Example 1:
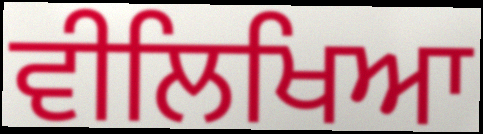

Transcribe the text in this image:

ਵੀਲਿਖਿਆ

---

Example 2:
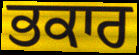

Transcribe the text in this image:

ਭਕਾਰ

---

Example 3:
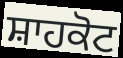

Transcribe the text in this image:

ਸ਼ਾਹਕੋਟ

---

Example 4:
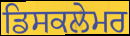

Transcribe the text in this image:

ਡਿਸਕਲੇਮਰ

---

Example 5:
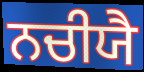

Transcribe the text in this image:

ਨਚੀਯੈ